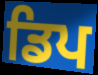
ਡਿਪ